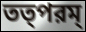
তত্পরম্